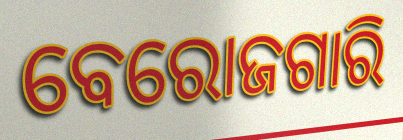
ବେରୋଜଗାରି